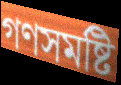
গণসমষ্টি